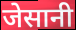
जेसानी